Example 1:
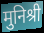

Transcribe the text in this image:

मुनिश्री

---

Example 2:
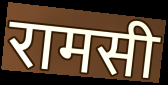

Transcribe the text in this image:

रामसी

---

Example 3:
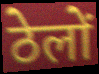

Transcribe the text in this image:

ठेलों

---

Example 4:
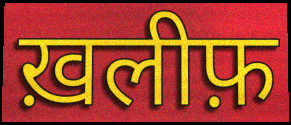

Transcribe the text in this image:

ख़लीफ़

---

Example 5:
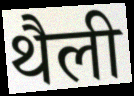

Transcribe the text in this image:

थैली